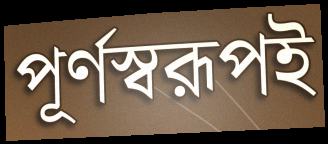
পূর্ণস্বরূপই